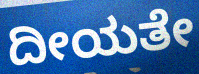
ದೀಯತೇ